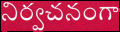
నిర్వచనంగా